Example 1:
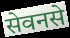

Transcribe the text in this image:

सेवनसे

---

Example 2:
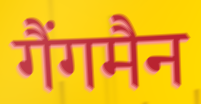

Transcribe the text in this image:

गैंगमैन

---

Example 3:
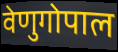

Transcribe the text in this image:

वेणुगोपाल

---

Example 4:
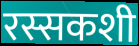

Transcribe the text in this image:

रस्सकशी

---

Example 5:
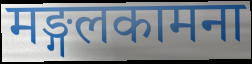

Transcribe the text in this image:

मङ्गलकामना